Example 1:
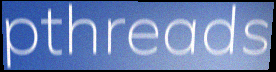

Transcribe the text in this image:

pthreads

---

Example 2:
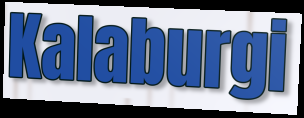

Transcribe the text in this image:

Kalaburgi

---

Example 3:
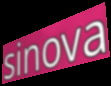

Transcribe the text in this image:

sinova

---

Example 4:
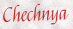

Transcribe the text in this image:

Chechnya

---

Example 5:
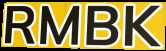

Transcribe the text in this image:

RMBK